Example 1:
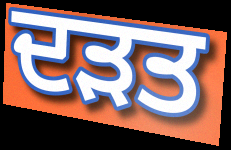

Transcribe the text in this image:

ਦੜਤ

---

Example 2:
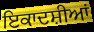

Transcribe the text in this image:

ਇਕਾਦਸ਼ੀਆਂ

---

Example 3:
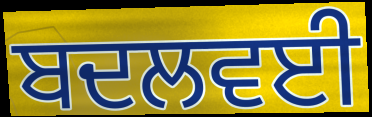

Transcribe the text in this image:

ਬਦਲਵਈ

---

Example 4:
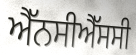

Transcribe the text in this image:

ਐੱਨਸੀਐੱਸਸੀ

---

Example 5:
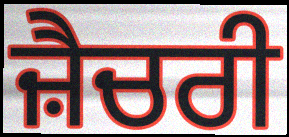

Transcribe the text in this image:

ਜ਼ੈਚਰੀ